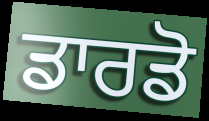
ਡਾਰਡੋ